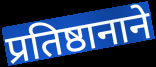
प्रतिष्ठानाने